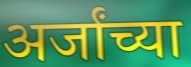
अर्जांच्या